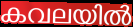
കവലയിൽ